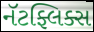
નૅટફ્લિક્સ